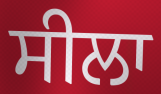
ਸੀਲਾ